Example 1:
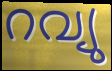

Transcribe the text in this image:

റവ്യു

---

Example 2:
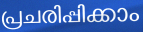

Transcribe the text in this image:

പ്രചരിപ്പിക്കാം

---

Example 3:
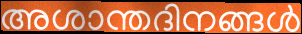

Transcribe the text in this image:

അശാന്തദിനങ്ങൾ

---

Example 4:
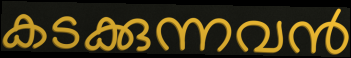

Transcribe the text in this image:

കടക്കുന്നവൻ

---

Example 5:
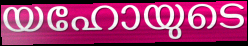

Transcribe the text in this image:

യഹോയുടെ